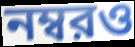
নম্বরও